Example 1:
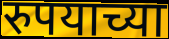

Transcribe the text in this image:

रुपयाच्या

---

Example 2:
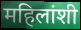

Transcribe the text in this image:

महिलांशी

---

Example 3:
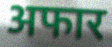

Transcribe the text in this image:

अफार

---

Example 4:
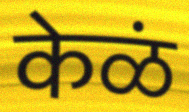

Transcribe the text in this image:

केळं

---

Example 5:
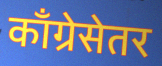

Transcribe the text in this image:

काँग्रेसेतर